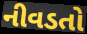
નીવડતો